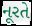
નૂરતે